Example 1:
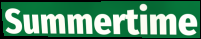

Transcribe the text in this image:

Summertime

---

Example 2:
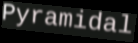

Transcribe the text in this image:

Pyramidal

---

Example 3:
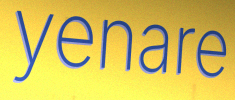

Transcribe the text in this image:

yenare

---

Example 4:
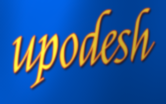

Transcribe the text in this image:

upodesh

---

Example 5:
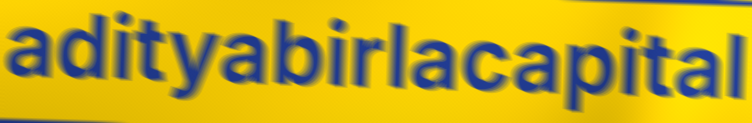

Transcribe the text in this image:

adityabirlacapital